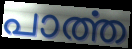
പാൎത്ത